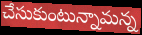
చేసుకుంటున్నామన్న